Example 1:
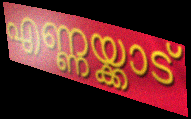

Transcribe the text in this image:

എണ്ണയ്ക്കാട്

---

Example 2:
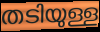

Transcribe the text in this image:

തടിയുള്ള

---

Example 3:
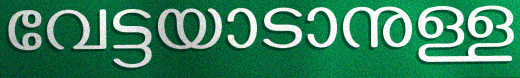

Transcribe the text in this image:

വേട്ടയാടാനുള്ള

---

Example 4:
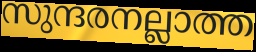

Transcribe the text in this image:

സുന്ദരനല്ലാത്ത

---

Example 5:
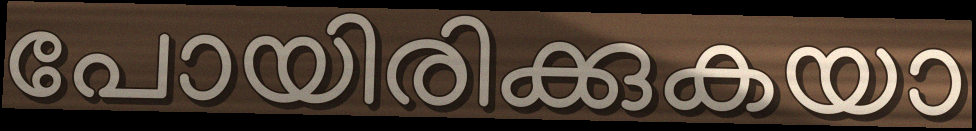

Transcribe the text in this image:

പോയിരിക്കുകയാ